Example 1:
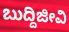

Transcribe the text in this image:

ಬುದ್ದಿಜೀವಿ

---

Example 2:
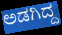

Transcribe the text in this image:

ಅಡಗಿದ್ದ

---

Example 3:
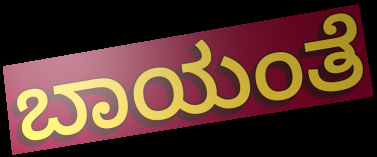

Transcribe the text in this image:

ಬಾಯಂತೆ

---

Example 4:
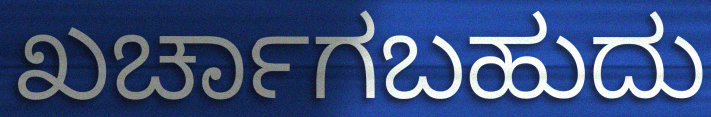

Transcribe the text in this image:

ಖರ್ಚಾಗಬಹುದು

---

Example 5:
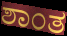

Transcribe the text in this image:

ಶಾಂತ